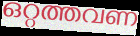
ഒറ്റത്തവണ